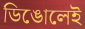
ডিঙোলেই